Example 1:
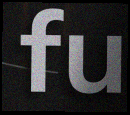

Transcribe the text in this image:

fu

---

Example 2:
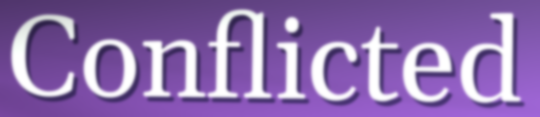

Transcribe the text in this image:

Conflicted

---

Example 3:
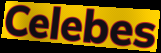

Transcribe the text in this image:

Celebes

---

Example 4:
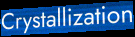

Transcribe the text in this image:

Crystallization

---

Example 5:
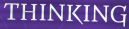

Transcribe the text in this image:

THINKING